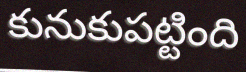
కునుకుపట్టింది